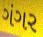
ગંગર